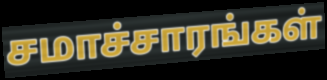
சமாச்சாரங்கள்